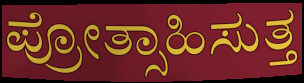
ಪ್ರೋತ್ಸಾಹಿಸುತ್ತ